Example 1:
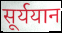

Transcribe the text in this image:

सूर्ययान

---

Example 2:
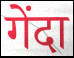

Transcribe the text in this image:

गेंदा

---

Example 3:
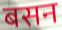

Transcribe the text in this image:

बसन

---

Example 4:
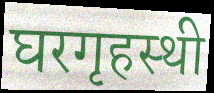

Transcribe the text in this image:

घरगृहस्थी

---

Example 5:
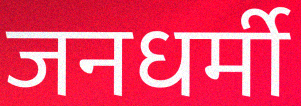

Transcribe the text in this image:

जनधर्मी